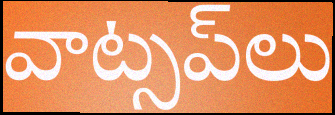
వాట్సప్‌లు